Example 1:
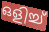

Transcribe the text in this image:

ഒളിച്ച്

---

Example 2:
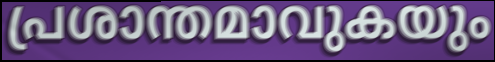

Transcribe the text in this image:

പ്രശാന്തമാവുകയും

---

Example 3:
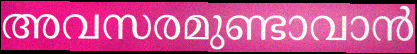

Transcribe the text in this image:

അവസരമുണ്ടാവാൻ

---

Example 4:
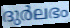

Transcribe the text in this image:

ദുർലഭം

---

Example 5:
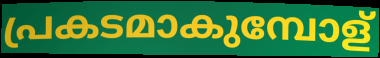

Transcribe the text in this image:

പ്രകടമാകുമ്പോള്